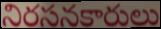
నిరసనకారులు